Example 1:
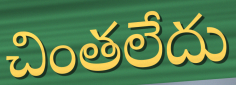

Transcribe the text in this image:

చింతలేదు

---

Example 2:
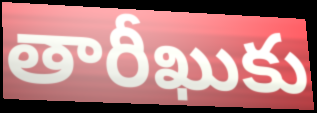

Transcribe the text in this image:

తారీఖుకు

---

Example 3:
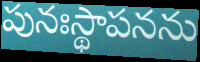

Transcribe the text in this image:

పునఃస్థాపనను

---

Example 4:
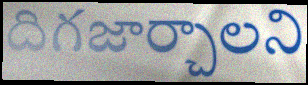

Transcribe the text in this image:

దిగజార్చాలని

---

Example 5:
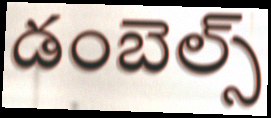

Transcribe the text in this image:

డంబెల్స్